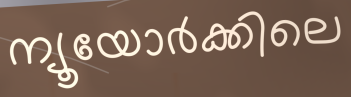
ന്യൂയോർക്കിലെ